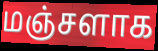
மஞ்சளாக